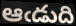
ఆఁడుది